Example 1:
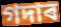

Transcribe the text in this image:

গদাৰ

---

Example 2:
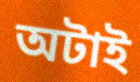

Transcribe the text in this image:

অটাই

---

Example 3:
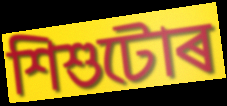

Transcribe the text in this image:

শিশুটোৰ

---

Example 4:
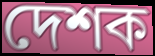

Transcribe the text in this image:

দেশক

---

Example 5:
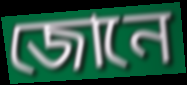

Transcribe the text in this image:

জোনে